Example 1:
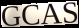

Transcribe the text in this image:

GCAS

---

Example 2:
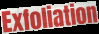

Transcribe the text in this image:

Exfoliation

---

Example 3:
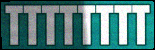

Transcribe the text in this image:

TTTTTTTT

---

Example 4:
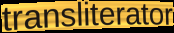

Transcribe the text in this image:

transliterator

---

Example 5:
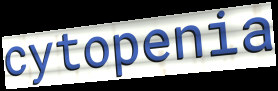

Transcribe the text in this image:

cytopenia